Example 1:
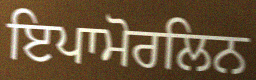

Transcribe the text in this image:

ਇਪਾਮੋਰਲਿਨ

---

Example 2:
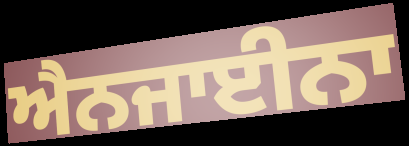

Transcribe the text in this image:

ਐਨਜਾਈਨਾ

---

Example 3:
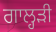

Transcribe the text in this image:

ਗਾਲ੍ਹੜੀ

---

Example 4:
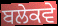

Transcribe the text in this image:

ਬਲੇਕਵੇ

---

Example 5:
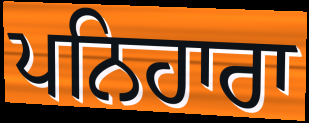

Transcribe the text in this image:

ਪਨਿਹਾਰਾ